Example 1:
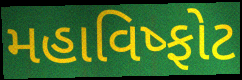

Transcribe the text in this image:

મહાવિષ્ફોટ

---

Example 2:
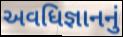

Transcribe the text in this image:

અવધિજ્ઞાનનું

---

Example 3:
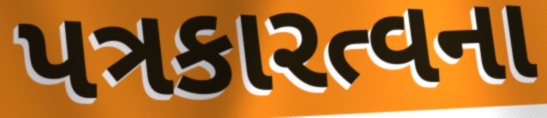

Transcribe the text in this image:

પત્રકારત્વના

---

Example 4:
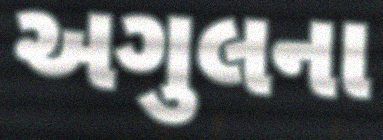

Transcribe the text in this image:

અગુલના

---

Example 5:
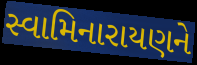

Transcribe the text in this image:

સ્વામિનારાયણને